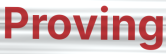
Proving